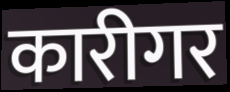
कारीगर